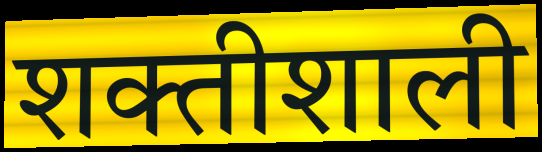
शक्‍तीशाली